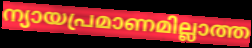
ന്യായപ്രമാണമില്ലാത്ത